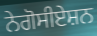
ਨੇਗੋਸੀਏਸ਼ਨ